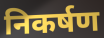
निकर्षण